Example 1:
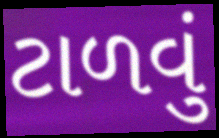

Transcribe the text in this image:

ટાળવું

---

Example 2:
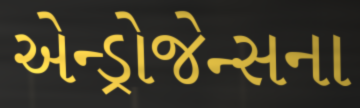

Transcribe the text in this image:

એન્ડ્રોજેન્સના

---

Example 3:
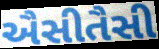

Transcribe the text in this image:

ઐસીતૈસી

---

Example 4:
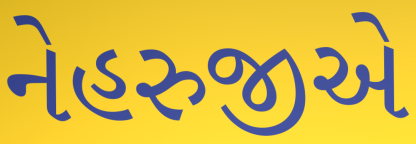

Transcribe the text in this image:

નેહરુજીએ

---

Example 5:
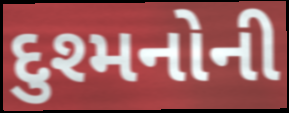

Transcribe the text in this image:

દુશ્મનોની